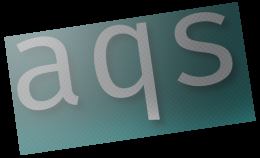
aqs